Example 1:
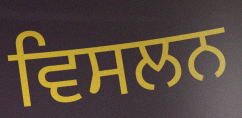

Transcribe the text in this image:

ਵਿਸਲਨ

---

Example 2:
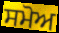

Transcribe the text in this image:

ਸਮੋਅ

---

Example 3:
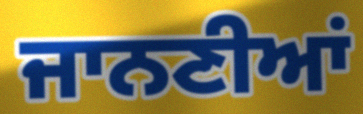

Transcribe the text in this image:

ਜਾਨਣੀਆਂ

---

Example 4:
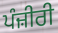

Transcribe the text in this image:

ਪੰਜ਼ੀਰੀ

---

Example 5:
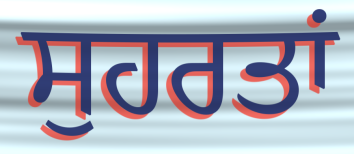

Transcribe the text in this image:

ਸੁਹਰਤਾਂ